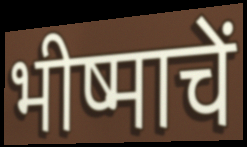
भीष्माचें